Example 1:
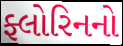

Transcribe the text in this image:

ફ્લોરિનનો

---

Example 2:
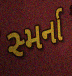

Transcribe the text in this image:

સ્મર્ના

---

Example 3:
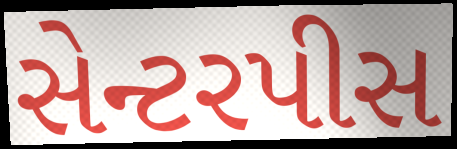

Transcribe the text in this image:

સેન્ટરપીસ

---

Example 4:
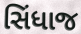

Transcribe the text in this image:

સિંધાજ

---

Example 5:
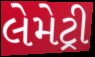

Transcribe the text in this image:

લેમેટ્રી